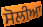
ਸੋਲੀਆ